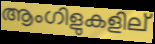
ആംഗിളുകളില്